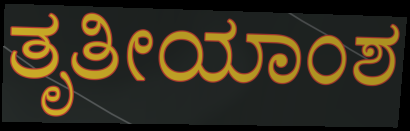
ತೃತೀಯಾಂಶ